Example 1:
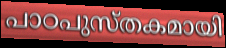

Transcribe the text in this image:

പാഠപുസ്തകമായി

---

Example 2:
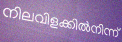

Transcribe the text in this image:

നിലവിളക്കിൽനിന്ന്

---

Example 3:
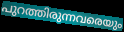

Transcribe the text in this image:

പുറത്തിരുന്നവരെയും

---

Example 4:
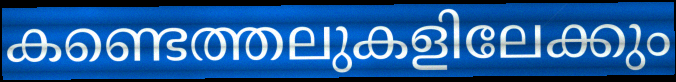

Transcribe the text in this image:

കണ്ടെത്തലുകളിലേക്കും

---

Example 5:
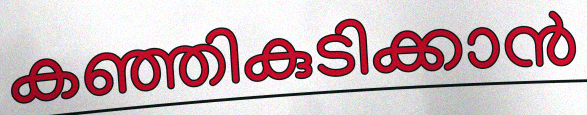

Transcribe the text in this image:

കഞ്ഞികുടിക്കാൻ